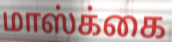
மாஸ்க்கை